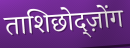
ताशिछोद्ज़ोंग